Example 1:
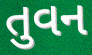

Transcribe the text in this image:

તુવન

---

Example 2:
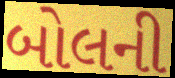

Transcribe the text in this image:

બોલની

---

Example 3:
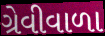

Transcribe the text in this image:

ગ્રેવીવાળા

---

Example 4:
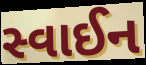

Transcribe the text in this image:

સ્વાઈન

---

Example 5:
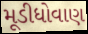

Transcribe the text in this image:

મૂડીધોવાણ